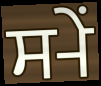
ਸ੍ਮੇਂ